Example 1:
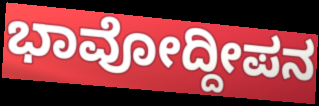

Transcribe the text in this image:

ಭಾವೋದ್ದೀಪನ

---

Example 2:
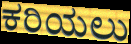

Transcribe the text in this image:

ಕರಿಯಲು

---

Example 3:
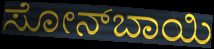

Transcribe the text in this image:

ಸೋನ್‍ಬಾಯಿ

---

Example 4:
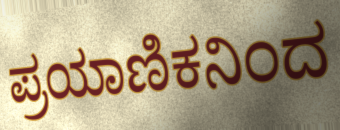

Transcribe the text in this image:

ಪ್ರಯಾಣಿಕನಿಂದ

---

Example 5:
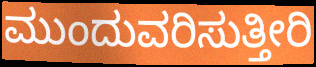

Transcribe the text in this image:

ಮುಂದುವರಿಸುತ್ತೀರಿ